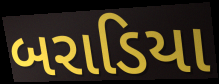
બરાડિયા